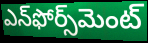
ఎన్‌ఫోర్స్‌మెంట్